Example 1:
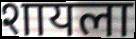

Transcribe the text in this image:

शायला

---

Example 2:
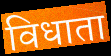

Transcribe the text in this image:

विधाता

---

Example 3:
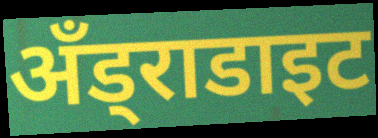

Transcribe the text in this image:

अँड्राडाइट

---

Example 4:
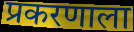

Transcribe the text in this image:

प्रकरणाला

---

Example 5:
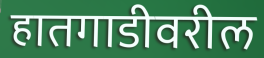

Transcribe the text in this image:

हातगाडीवरील